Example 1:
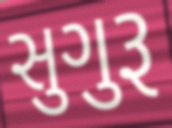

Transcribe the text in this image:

સુગુરૂ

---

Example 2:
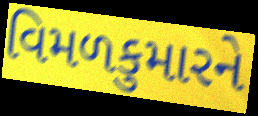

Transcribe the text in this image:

વિમળકુમારને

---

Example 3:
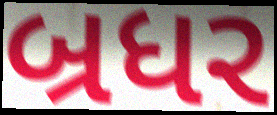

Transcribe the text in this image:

બ્રધર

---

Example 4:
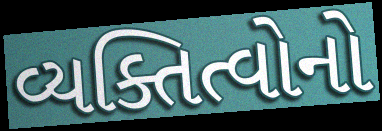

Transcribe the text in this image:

વ્યક્તિત્વોનો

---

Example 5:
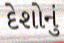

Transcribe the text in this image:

દેશોનું